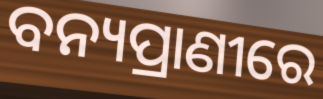
ବନ୍ୟପ୍ରାଣୀରେ